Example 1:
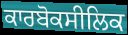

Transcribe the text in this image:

ਕਾਰਬੋਕਸੀਲਿਕ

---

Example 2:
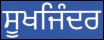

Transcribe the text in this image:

ਸੂਖਜਿੰਦਰ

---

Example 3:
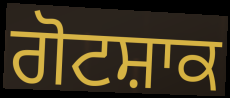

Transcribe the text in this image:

ਗੋਟਸ਼ਾਕ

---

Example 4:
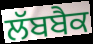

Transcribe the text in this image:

ਲੱਬਬੈਕ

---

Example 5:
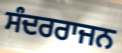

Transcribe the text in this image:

ਸੰਦਰਰਾਜਨ